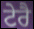
ਟੇਰੈ